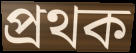
প্রথক